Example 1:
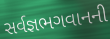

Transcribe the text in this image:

સર્વજ્ઞભગવાનની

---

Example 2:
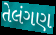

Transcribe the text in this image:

તેલંગણ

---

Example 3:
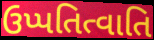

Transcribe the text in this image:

ઉપ્પતિત્વાતિ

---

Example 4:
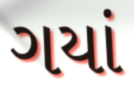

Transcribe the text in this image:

ગયાં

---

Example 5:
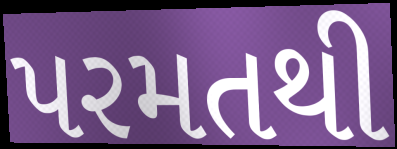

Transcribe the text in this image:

પરમતથી